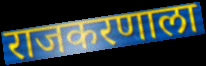
राजकरणाला